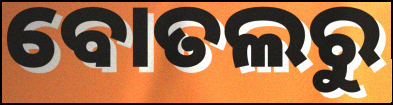
ବୋତଲରୁ